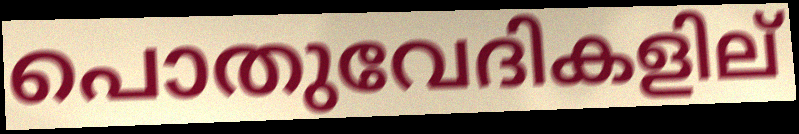
പൊതുവേദികളില്